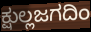
ಕ್ಷುಲ್ಲಜಗದಿಂ